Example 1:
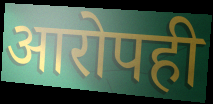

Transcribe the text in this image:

आरोपही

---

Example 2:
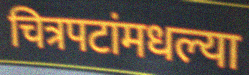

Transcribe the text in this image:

चित्रपटांमधल्या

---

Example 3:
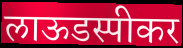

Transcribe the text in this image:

लाऊडस्पीकर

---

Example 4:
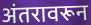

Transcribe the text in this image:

अंतरावरून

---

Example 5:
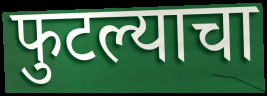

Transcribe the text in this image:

फुटल्याचा